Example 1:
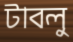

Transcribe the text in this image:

টাবলু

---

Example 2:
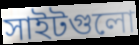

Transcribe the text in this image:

সাইটগুলো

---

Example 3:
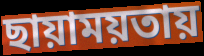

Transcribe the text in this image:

ছায়াময়তায়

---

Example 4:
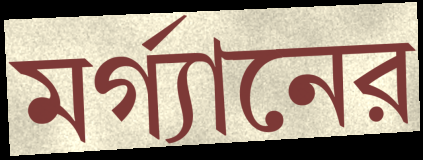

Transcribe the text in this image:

মর্গ্যানের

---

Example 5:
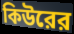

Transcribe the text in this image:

কিউরের